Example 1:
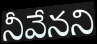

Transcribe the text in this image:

నీవేనని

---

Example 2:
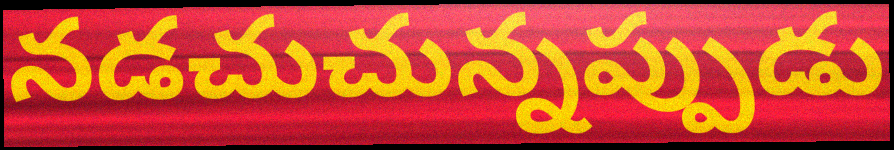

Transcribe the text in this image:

నడచుచున్నప్పుడు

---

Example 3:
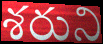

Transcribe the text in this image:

శరుని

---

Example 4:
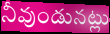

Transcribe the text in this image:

నీవుండునట్లు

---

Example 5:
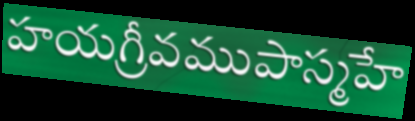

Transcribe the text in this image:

హయగ్రీవముపాస్మహే